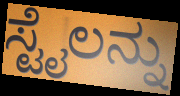
ಸ್ಟೈಲನ್ನು